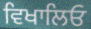
ਵਿਖਾਲਿਓ